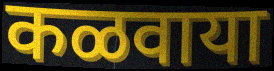
कळवाया